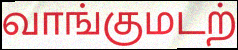
வாங்குமடற்